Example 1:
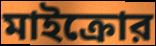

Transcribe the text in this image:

মাইক্রোর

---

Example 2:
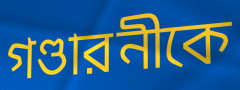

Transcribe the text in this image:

গণ্ডারনীকে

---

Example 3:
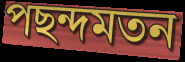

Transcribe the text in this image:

পছন্দমতন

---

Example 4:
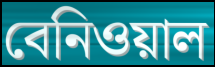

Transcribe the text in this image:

বেনিওয়াল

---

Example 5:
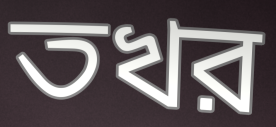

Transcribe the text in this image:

তখর